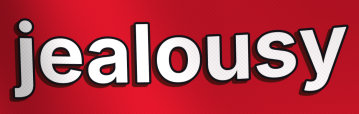
jealousy